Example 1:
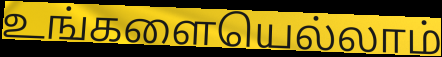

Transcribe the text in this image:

உங்களையெல்லாம்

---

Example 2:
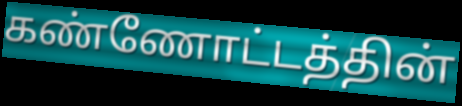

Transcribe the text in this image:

கண்ணோட்டத்தின்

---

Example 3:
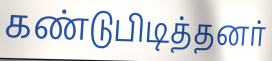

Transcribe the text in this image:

கண்டுபிடித்தனர்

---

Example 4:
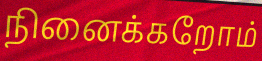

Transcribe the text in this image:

நினைக்கறோம்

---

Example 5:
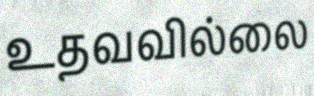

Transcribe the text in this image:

உதவவில்லை